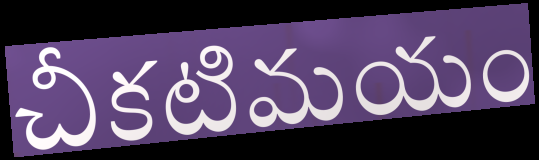
చీకటిమయం